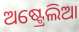
ଅଷ୍ଟ୍ରେଲିଆ